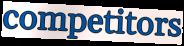
competitors